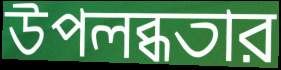
উপলব্ধতার